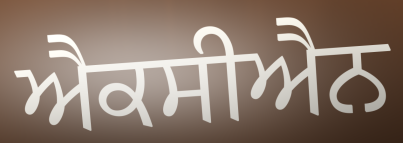
ਐਕਸੀਐਨ